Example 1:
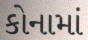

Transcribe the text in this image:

કોનામાં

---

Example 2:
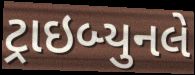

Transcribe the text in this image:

ટ્રાઇબ્યુનલે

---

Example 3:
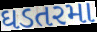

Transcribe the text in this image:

ઘડતરમા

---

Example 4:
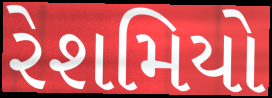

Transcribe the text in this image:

રેશમિયો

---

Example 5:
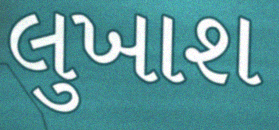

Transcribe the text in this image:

લુખાશ